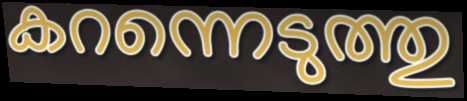
കറന്നെടുത്തു